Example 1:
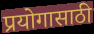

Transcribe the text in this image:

प्रयोगासाठी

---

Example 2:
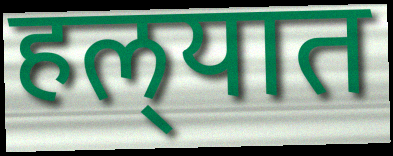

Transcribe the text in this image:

हल्यात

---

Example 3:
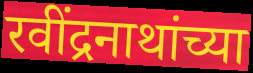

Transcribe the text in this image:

रवींद्रनाथांच्या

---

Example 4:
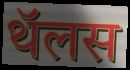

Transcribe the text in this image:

थॅलस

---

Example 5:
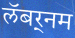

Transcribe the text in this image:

लॅबर्नम